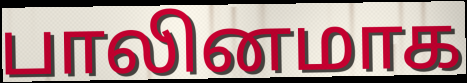
பாலினமாக